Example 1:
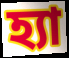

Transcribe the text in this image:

হ্যা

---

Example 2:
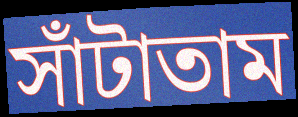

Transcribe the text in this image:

সাঁটাতাম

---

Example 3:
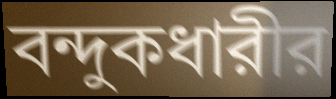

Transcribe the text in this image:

বন্দুকধারীর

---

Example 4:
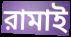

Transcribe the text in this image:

রামাই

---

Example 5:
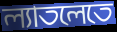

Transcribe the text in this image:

ল্যাতলেতে